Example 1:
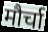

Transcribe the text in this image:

मौर्चा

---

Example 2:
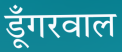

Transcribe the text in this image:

डूँगरवाल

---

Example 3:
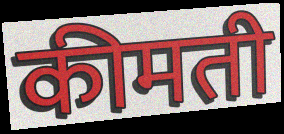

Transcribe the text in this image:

कीमती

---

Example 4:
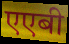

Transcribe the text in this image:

एएबी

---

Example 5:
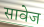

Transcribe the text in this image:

सावेज